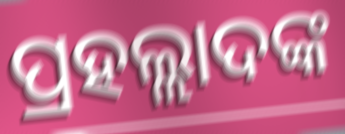
ପ୍ରହଲ୍ଲାଦଙ୍କ